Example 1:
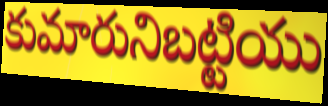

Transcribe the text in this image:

కుమారునిబట్టియు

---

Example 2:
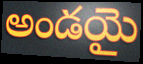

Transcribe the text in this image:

అండయై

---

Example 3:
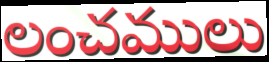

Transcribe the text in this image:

లంచములు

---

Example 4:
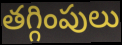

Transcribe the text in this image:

తగ్గింపులు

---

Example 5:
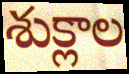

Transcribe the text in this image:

శుక్లాల